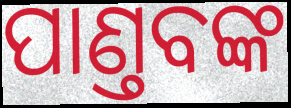
ପାଣ୍ତବଙ୍କ